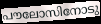
പൗലോസിനോടു